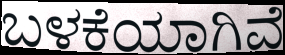
ಬಳಕೆಯಾಗಿವೆ